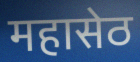
महासेठ